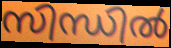
സിന്ധിൽ